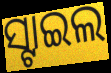
ସ୍ଟାଇଲ